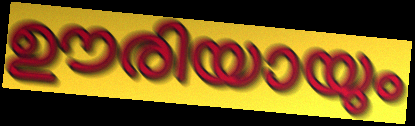
ഊരിയായും